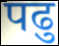
पढु